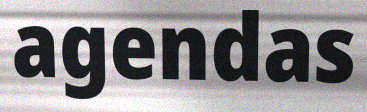
agendas